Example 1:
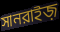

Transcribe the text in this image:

সানরাইজ়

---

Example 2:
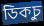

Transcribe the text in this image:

ডিকচু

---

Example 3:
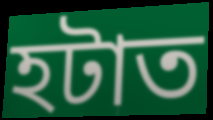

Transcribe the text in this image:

হটাত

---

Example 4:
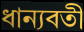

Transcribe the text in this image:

ধান্যবতী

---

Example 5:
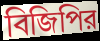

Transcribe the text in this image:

বিজিপির